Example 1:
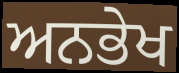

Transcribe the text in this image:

ਅਨਭੇਖ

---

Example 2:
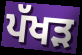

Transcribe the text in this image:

ਪੱਖੜ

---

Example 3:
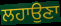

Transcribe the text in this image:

ਲਹਾਉਣਾ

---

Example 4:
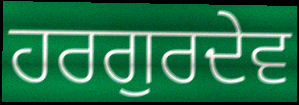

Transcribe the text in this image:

ਹਰਗੁਰਦੇਵ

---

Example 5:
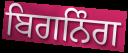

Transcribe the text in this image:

ਬਿਗਨਿੰਗ